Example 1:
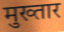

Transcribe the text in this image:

मुख्‍तार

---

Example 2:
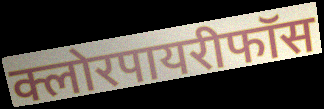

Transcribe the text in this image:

क्लोरपायरीफॉस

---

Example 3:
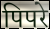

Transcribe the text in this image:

पिपरे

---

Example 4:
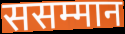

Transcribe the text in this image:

ससम्मान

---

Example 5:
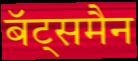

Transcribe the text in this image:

बॅट्समैन